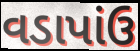
વડાપાંઉ